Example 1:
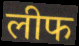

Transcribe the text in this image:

लीफ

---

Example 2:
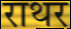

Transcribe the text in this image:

राथर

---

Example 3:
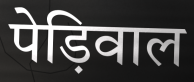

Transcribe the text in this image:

पेड़िवाल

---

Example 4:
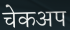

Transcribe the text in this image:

चेकअप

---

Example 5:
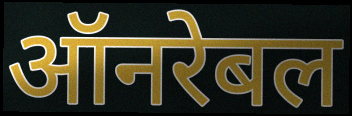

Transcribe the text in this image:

ऑनरेबल